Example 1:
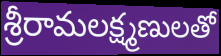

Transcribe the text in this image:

శ్రీరామలక్ష్మణులతో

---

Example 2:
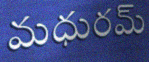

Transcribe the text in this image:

మధురమ్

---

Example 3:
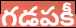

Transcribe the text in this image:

గడపకీ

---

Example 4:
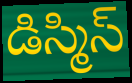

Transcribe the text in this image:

డిస్మిస్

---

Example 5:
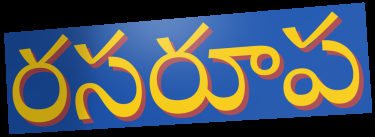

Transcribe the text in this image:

రసరూప